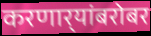
करणार्‍यांबरोबर